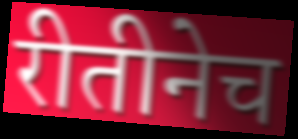
रीतीनेच